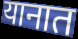
यानात